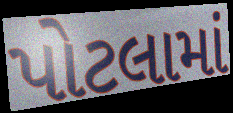
પોટલામાં